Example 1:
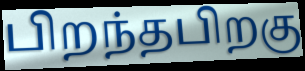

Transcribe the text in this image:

பிறந்தபிறகு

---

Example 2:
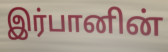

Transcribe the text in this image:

இர்பானின்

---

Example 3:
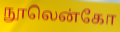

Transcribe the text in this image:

நூலென்கோ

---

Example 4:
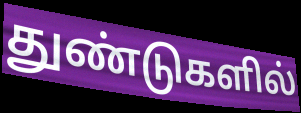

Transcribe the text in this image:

துண்டுகளில்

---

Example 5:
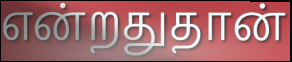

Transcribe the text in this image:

என்றதுதான்